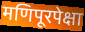
मणिपूरपेक्षा